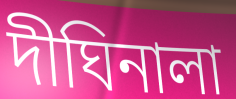
দীঘিনালা